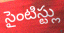
సైంటిస్ట్లు